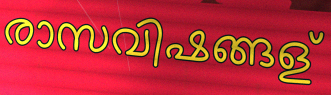
രാസവിഷങ്ങള്